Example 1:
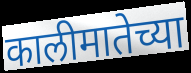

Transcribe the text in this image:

कालीमातेच्या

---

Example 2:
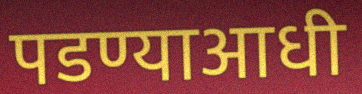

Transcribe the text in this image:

पडण्याआधी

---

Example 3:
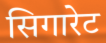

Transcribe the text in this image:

सिगारेट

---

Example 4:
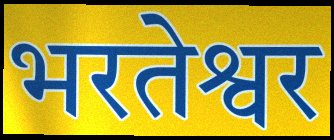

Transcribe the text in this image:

भरतेश्वर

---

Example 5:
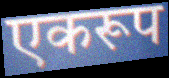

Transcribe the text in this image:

एकरूप